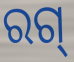
ରଗ୍